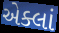
એક્લાં